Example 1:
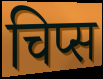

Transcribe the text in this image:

चिप्स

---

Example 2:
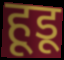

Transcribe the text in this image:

हूडू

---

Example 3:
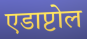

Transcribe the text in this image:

एडाप्टोल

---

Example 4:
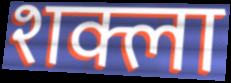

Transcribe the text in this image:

शक्ला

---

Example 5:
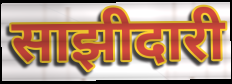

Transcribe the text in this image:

साझीदारी